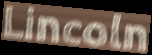
Lincoln